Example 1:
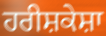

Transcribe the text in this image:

ਹਰੀਸ਼ਕੇਸ਼ਾ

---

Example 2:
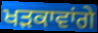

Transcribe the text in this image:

ਖੜਕਾਵਾਂਗੇ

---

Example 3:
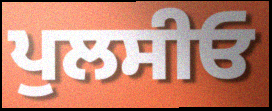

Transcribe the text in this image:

ਪੁਲਸੀਓ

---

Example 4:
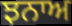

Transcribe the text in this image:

ਝਨਾਅ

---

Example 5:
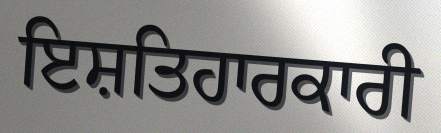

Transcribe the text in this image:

ਇਸ਼ਤਿਹਾਰਕਾਰੀ